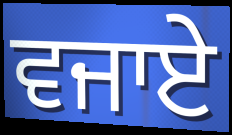
ਵਜਾਏ